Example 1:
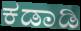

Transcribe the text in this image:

ಕಡಾಡಿ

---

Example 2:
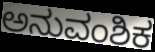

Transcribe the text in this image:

ಅನುವಂಶಿಕ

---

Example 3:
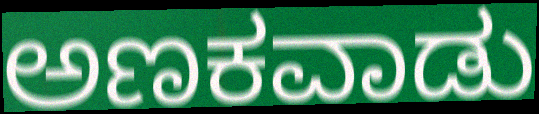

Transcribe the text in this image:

ಅಣಕವಾಡು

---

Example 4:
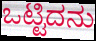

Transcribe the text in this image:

ಒಟ್ಟಿದನು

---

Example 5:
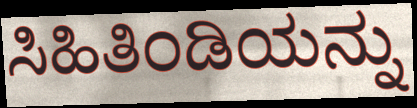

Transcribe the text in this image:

ಸಿಹಿತಿಂಡಿಯನ್ನು